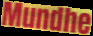
Mundhe